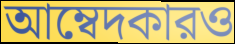
আম্বেদকারও